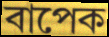
বাপেক